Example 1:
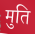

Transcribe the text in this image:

मुति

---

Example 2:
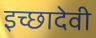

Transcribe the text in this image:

इच्छादेवी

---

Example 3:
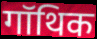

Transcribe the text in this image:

गॉथिक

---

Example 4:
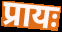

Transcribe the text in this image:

प्रायः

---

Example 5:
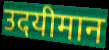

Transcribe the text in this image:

उदयीमान